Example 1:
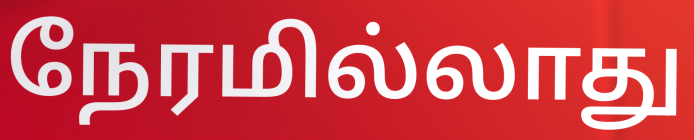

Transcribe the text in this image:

நேரமில்லாது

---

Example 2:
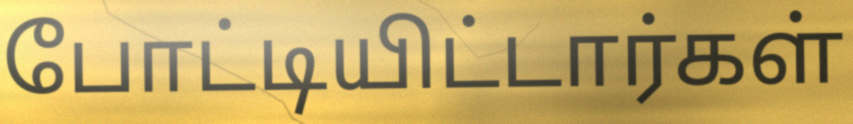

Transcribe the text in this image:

போட்டியிட்டார்கள்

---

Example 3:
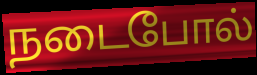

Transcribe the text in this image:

நடைபோல்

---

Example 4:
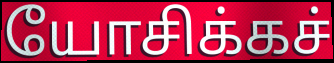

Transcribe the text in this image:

யோசிக்கச்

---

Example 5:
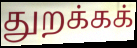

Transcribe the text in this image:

துறக்கக்